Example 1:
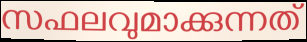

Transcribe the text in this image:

സഫലവുമാക്കുന്നത്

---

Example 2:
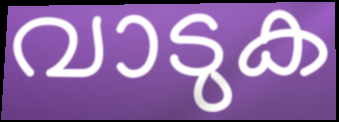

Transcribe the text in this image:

വാടുക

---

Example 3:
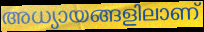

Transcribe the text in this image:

അധ്യായങ്ങളിലാണ്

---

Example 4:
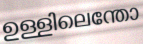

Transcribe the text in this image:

ഉള്ളിലെന്തോ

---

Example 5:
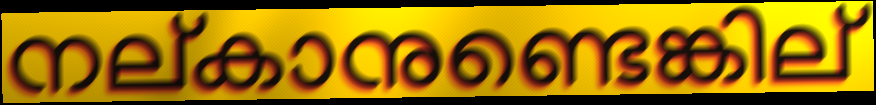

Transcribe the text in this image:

നല്കാനുണ്ടെങ്കില്